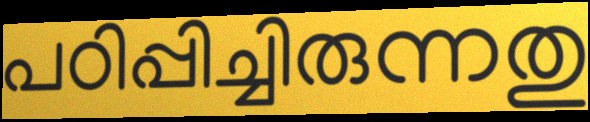
പഠിപ്പിച്ചിരുന്നതു